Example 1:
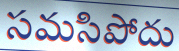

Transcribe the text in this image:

సమసిపోదు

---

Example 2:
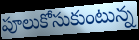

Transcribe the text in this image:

పూలుకోసుకుంటున్న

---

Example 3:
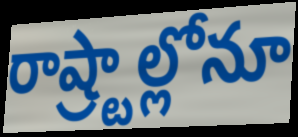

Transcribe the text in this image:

రాష్ర్టాల్లోనూ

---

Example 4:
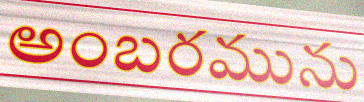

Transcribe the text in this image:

అంబరమును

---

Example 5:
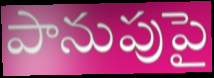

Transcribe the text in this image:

పానుపుపై